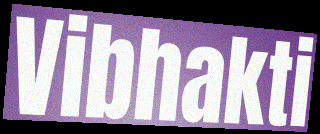
Vibhakti